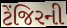
ટેંજિરની